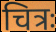
चित्रः